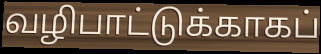
வழிபாட்டுக்காகப்